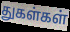
துகள்கள்